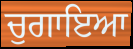
ਚੁਗਾਇਆ